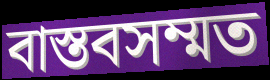
বাস্তবসম্মত